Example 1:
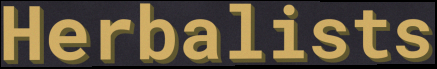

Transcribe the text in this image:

Herbalists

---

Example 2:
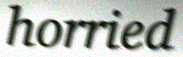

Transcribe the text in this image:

horried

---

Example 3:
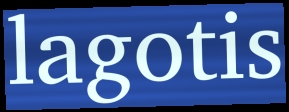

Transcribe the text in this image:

lagotis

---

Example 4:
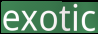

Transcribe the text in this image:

exotic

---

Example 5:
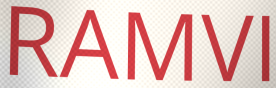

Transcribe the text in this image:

RAMVI